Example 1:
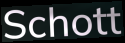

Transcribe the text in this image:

Schott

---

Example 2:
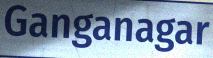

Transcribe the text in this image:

Ganganagar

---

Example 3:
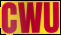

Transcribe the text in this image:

CWU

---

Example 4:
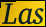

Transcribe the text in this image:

Las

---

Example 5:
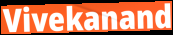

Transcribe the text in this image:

Vivekanand